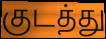
குடத்து